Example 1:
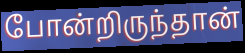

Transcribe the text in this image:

போன்றிருந்தான்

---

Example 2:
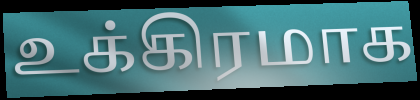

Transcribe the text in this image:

உக்கிரமாக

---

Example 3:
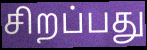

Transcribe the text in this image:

சிறப்பது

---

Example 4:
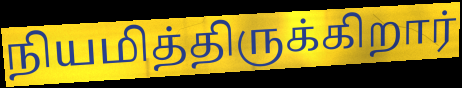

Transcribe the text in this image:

நியமித்திருக்கிறார்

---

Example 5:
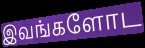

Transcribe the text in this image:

இவங்களோட